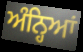
ਅੰਨ੍ਹਿਆਂ